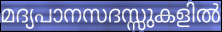
മദ്യപാനസദസ്സുകളിൽ